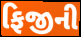
ફિજીની